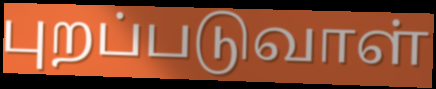
புறப்படுவாள்